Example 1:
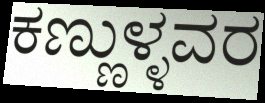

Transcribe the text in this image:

ಕಣ್ಣುಳ್ಳವರ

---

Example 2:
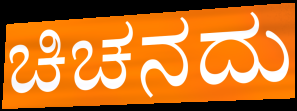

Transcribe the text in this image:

ಚಿಚನದು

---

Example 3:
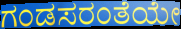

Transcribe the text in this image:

ಗಂಡಸರಂತೆಯೇ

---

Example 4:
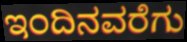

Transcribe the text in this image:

ಇಂದಿನವರೆಗು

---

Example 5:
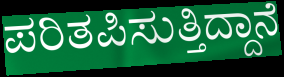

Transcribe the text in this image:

ಪರಿತಪಿಸುತ್ತಿದ್ದಾನೆ